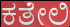
ಕತೇಲಿ